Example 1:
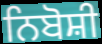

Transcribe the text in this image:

ਨਿਬੋਸ਼ੀ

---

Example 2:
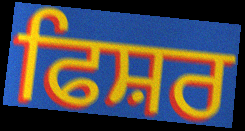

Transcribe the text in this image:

ਫਿਸ਼ਰ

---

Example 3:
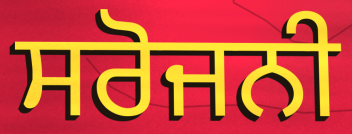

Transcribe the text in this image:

ਸਰੋਜਨੀ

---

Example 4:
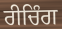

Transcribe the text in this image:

ਰੀਚਿੰਗ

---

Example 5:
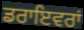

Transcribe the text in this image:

ਡਰਾਇਵਰਾਂ